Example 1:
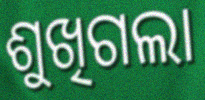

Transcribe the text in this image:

ଶୁଖିଗଲା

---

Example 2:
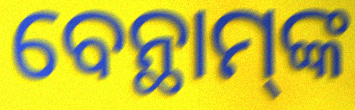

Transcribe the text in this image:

ବେନ୍ଥାମ୍‌ଙ୍କ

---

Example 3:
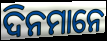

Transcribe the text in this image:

ଦିନମାନେ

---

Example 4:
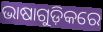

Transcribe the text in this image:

ଭାଷାଗୁଡ଼ିକରେ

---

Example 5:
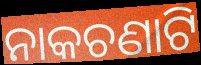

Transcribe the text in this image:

ନାକଚଣାଟି